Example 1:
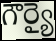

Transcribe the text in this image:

గౌర్యై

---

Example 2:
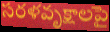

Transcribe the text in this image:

సరళవృక్షాలపై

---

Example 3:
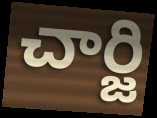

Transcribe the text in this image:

చార్జి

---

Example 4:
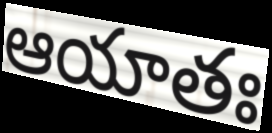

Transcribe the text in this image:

ఆయాతః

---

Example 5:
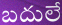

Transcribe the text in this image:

బదులే